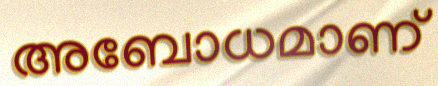
അബോധമാണ്